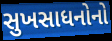
સુખસાધનોનો